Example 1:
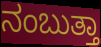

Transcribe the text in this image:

ನಂಬುತ್ತಾ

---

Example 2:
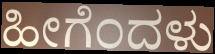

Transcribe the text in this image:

ಹೀಗೆಂದಳು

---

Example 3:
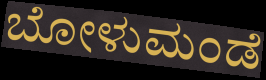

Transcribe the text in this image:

ಬೋಳುಮಂಡೆ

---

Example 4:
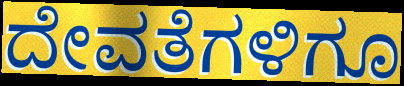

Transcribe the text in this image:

ದೇವತೆಗಳಿಗೂ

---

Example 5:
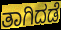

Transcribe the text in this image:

ತಾಗಿದಡೆ